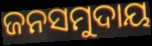
ଜନସମୁଦାୟ